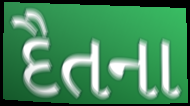
દૈતના